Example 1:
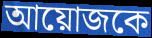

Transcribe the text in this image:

আয়োজকে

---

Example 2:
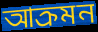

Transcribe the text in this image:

আক্ৰমন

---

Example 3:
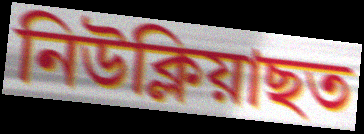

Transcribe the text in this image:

নিউক্লিয়াছত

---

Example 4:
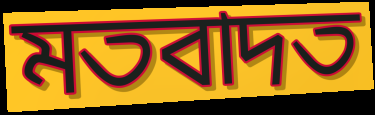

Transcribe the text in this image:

মতবাদত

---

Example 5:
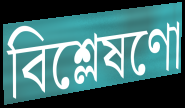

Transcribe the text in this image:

বিশ্লেষণো